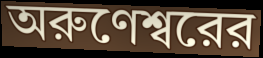
অরুণেশ্বরের